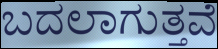
ಬದಲಾಗುತ್ತವೆ